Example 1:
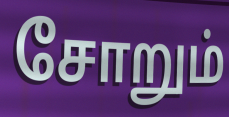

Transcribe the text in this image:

சோறும்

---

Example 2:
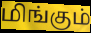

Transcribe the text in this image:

மிங்கும்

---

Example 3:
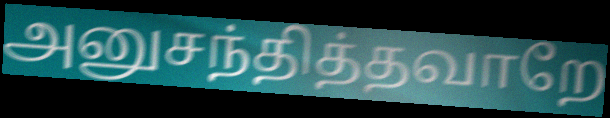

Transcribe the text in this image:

அனுசந்தித்தவாறே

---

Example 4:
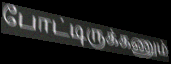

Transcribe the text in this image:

போட்டிருக்கணும்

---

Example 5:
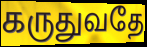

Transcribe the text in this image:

கருதுவதே